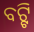
ବଟ୍ଟି